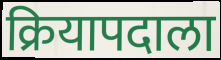
क्रियापदाला